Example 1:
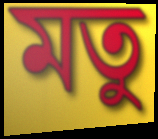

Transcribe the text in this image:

মতু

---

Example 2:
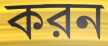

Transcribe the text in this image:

করন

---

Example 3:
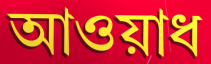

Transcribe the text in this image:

আওয়াধ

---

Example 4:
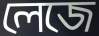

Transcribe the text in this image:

লেজে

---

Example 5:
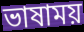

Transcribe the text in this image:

ভাষাময়